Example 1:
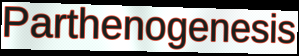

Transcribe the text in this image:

Parthenogenesis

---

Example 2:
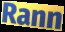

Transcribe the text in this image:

Rann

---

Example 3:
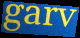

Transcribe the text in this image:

garv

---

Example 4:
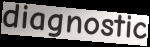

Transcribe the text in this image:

diagnostic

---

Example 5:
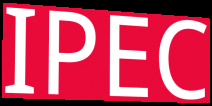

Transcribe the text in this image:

IPEC